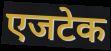
एजटेक